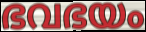
ഭവഭയം